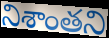
నిశాంతని